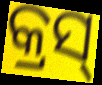
କ୍ରସ୍